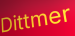
Dittmer